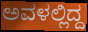
ಅವಳಲ್ಲಿದ್ದ